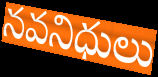
నవనిధులు